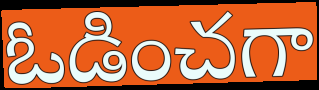
ఓడించగా